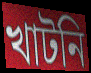
খাটনি